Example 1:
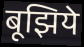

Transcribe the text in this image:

बूझिये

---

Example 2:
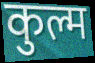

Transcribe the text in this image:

कुल्म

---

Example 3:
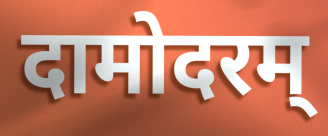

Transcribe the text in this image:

दामोदरम्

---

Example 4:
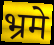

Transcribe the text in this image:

भ्रमे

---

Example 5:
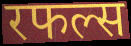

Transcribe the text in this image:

रफल्स